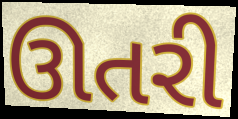
ઊતરી